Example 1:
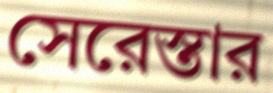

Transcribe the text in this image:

সেরেস্তার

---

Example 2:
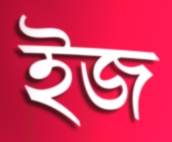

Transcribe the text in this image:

ইজ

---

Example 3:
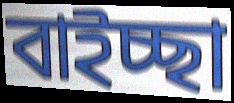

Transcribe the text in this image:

বাইচ্ছা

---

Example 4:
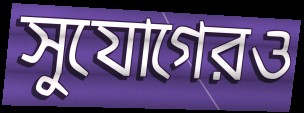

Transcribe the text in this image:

সুযোগেরও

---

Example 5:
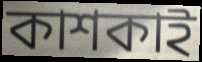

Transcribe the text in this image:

কাশকাই